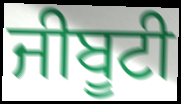
ਜੀਬੂਟੀ